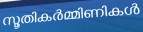
സൂതികർമ്മിണികൾ